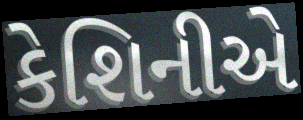
કેશિનીએ